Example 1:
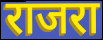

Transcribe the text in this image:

राजरा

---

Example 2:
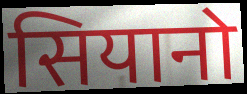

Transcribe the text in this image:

सियानो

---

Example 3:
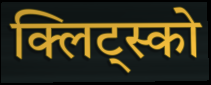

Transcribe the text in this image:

क्लिट्स्को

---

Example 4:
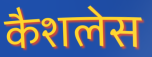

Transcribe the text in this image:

कैशलेस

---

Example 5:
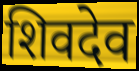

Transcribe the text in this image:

शिवदेव